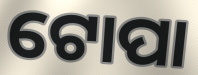
ଟୋପା